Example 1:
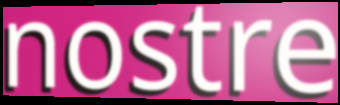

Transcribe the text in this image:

nostre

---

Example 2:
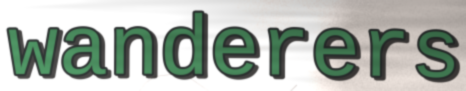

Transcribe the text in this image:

wanderers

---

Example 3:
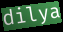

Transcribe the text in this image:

dilya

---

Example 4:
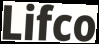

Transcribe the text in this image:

Lifco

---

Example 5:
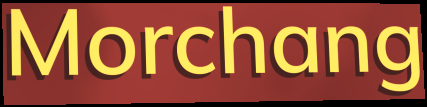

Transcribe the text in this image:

Morchang